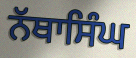
ਨੱਥਾਸਿੰਘ